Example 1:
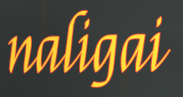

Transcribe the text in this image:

naligai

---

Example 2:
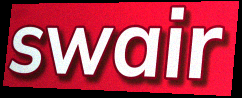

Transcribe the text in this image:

swair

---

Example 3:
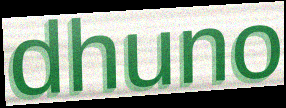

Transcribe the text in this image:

dhuno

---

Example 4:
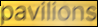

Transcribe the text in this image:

pavilions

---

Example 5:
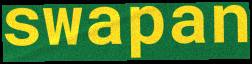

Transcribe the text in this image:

swapan